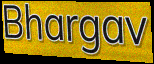
Bhargav